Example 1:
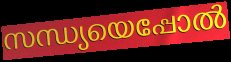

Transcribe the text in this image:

സന്ധ്യയെപ്പോൽ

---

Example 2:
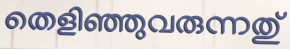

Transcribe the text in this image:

തെളിഞ്ഞുവരുന്നതു്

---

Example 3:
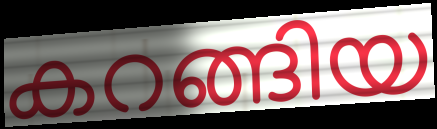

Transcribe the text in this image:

കറങ്ങിയ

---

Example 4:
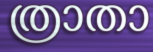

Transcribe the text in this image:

ത്രാതാ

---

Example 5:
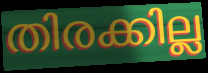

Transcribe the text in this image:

തിരക്കില്ല